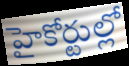
హైకోర్టుల్లో